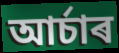
আৰ্চাৰ